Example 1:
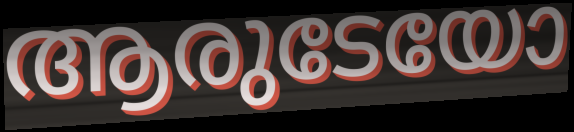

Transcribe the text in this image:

ആരുടേയോ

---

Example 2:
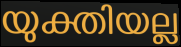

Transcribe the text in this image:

യുക്തിയല്ല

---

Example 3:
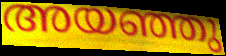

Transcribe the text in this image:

അയഞ്ഞു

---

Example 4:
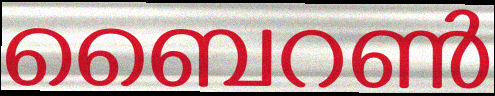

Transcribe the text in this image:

ബൈറൺ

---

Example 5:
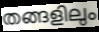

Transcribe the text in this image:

തങ്ങളിലും